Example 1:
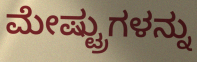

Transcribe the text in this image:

ಮೇಷ್ಟ್ರುಗಳನ್ನು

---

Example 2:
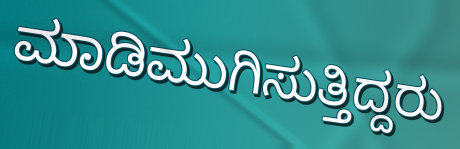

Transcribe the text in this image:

ಮಾಡಿಮುಗಿಸುತ್ತಿದ್ದರು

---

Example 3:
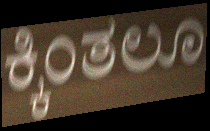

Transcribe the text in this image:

ಕ್ಕಿಂತಲೂ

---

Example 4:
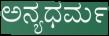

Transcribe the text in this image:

ಅನ್ಯಧರ್ಮ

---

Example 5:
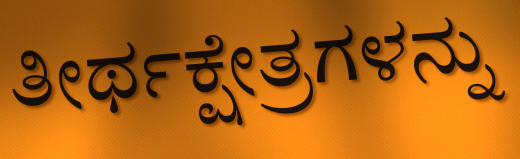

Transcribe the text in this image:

ತೀರ್ಥಕ್ಷೇತ್ರಗಳನ್ನು